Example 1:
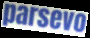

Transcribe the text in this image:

parsevo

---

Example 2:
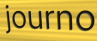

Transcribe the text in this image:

journo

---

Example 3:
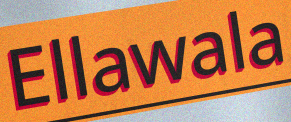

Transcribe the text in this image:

Ellawala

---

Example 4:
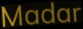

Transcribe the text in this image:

Madar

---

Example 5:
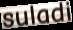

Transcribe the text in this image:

suladi